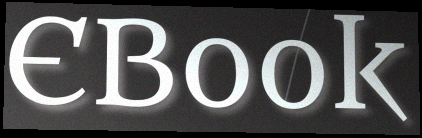
EBook